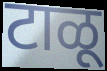
टाळू